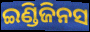
ଇଣ୍ଡିଜିନସ